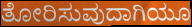
ತೋರಿಸುವುದಾಗಿಯೂ